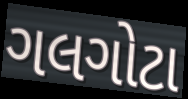
ગલગોટા